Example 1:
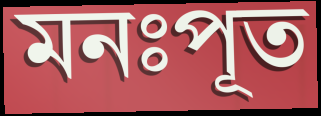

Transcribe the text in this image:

মনঃপূত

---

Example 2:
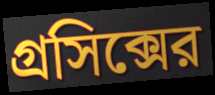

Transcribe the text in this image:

গ্রসিক্সের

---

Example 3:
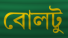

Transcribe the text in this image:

বোলটু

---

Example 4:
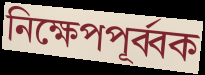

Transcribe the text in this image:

নিক্ষেপপূর্ব্বক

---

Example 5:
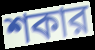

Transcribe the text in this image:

শকার